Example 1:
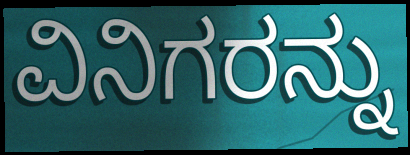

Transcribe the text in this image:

ವಿನಿಗರನ್ನು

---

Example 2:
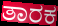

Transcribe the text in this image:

ತಾರಕ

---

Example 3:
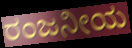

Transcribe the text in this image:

ರಂಜನೀಯ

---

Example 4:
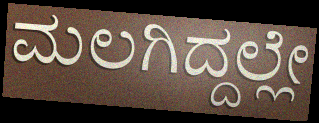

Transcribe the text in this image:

ಮಲಗಿದ್ದಲ್ಲೇ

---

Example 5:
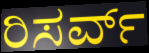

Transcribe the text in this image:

ರಿಸರ್ವ್